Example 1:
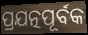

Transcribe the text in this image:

ପ୍ରଯତ୍ନପୂର୍ବକ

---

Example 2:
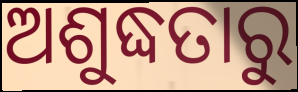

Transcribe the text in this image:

ଅଶୁଦ୍ଧତାରୁ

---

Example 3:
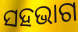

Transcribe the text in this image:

ସହଭାଗ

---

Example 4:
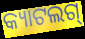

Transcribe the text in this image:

କ୍ୟାଟଲଗ୍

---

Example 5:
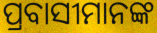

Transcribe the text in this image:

ପ୍ରବାସୀମାନଙ୍କ